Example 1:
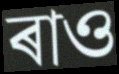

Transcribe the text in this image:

ৰাও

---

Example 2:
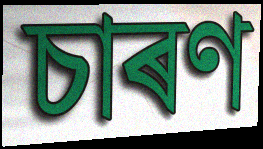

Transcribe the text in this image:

চাৰণ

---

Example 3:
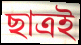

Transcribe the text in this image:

ছাত্ৰই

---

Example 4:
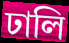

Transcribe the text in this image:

ঢালি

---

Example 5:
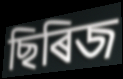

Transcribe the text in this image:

ছিৰিজ